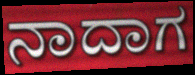
ನಾದಾಗ